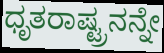
ಧೃತರಾಷ್ಟ್ರನನ್ನೇ